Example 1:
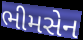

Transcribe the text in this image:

ભીમસેન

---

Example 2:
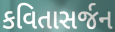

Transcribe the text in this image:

કવિતાસર્જન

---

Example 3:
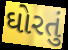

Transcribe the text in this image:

ઘોરતું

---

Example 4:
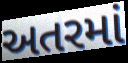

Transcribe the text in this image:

અતરમાં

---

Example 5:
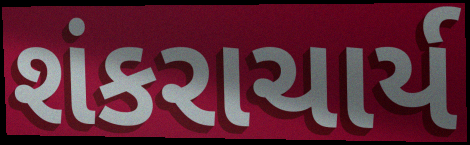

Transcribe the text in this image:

શંકરાચાર્ય